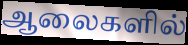
ஆலைகளில்